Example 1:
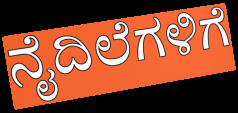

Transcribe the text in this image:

ನೈದಿಲೆಗಳಿಗೆ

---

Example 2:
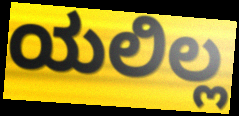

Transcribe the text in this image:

ಯಲಿಲ್ಲ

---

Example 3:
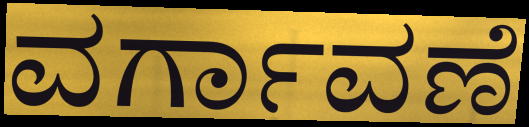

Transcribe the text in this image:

ವರ್ಗಾವಣೆ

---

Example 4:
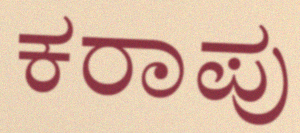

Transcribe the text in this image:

ಕರಾಪು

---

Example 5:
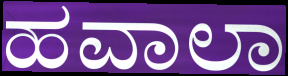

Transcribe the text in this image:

ಹವಾಲಾ